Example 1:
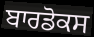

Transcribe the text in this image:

ਬਾਰਡੋਕਸ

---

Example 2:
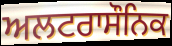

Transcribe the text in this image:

ਅਲਟਰਾਸੌਨਿਕ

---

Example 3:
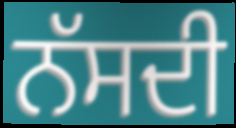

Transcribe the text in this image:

ਨੱਸਦੀ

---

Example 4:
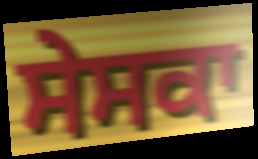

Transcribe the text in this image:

ਸੇਸਕਾ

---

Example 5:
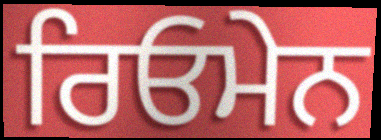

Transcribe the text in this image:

ਰਿਓਮੇਨ